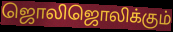
ஜொலிஜொலிக்கும்